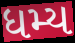
ધમ્ય